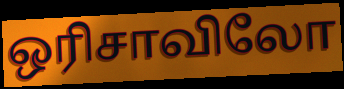
ஒரிசாவிலோ